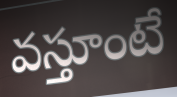
వస్తూంటే